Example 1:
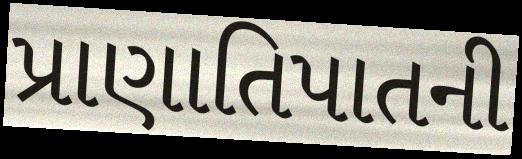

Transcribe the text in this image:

પ્રાણાતિપાતની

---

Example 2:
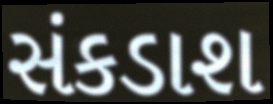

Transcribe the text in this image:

સંકડાશ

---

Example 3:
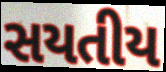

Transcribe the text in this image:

સયતીય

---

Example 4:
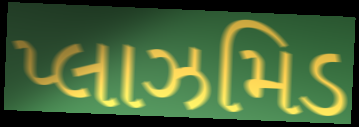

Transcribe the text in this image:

પ્લાઝમિડ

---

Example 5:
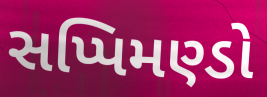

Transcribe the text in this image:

સપ્પિમણ્ડો